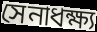
সেনাধক্ষ্য